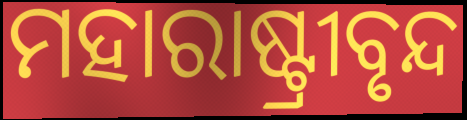
ମହାରାଷ୍ଟ୍ରୀବୃନ୍ଦ